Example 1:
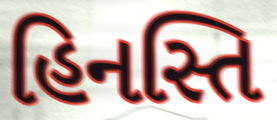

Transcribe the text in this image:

હિનસ્તિ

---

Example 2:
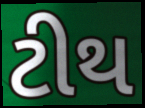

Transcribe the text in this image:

ટીથ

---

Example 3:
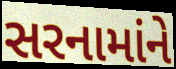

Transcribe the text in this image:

સરનામાંને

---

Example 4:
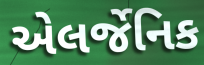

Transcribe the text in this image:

એલર્જેનિક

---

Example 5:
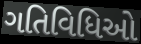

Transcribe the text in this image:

ગતિવિધિઓ